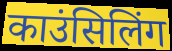
काउंसिलिंग